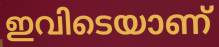
ഇവിടെയാണ്